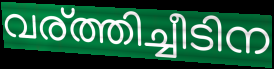
വര്ത്തിച്ചീടിന